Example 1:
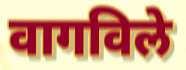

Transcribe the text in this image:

वागविले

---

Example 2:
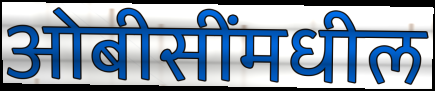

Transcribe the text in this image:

ओबीसींमधील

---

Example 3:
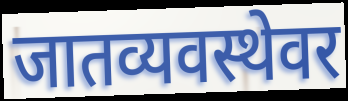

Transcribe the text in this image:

जातव्यवस्थेवर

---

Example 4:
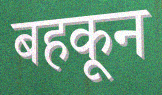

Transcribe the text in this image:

बहकून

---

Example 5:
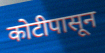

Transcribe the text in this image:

कोटीपासून